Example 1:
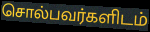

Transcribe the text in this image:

சொல்பவர்களிடம்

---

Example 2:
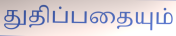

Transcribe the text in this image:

துதிப்பதையும்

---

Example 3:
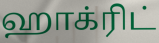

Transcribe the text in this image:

ஹாக்ரிட்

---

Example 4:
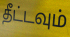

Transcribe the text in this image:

தீட்டவும்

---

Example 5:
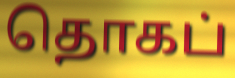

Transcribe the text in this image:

தொகப்